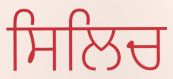
ਸਿਲਿਚ